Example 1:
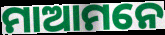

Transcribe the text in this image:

ମାଆମନେ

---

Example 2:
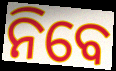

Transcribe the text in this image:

ନିବେ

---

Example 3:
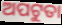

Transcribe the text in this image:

ଅପଟୁତା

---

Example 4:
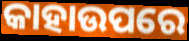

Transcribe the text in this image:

କାହାଉପରେ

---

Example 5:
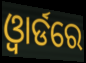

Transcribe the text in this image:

ଓ୍ବାର୍ଡରେ